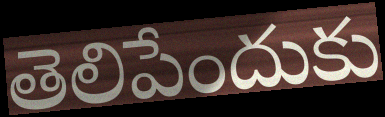
తెలిపేందుకు